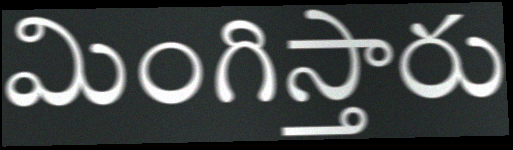
మింగిస్తారు